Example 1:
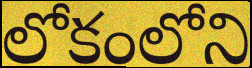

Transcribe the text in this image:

లోకంలోని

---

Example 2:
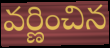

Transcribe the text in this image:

వర్ణించిన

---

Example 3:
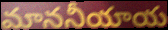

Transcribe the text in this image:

మాననీయాయ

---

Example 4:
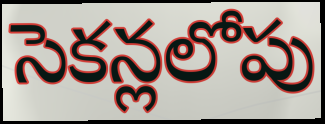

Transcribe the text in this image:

సెకన్లలోపు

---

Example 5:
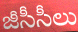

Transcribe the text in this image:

జీసీసీలు